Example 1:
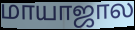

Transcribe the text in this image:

மாயாஜால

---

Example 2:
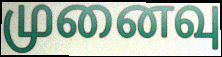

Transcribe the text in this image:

முனைவு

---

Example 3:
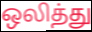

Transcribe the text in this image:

ஒலித்து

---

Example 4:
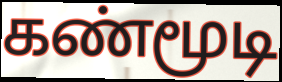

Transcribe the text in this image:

கண்மூடி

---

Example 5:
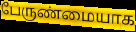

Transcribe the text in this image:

பேருண்மையாக